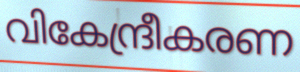
വികേന്ദ്രീകരണ